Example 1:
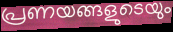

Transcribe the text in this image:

പ്രണയങ്ങളുടെയും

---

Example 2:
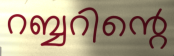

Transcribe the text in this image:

റബ്ബറിന്റെ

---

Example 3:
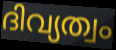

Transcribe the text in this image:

ദിവ്യത്വം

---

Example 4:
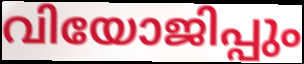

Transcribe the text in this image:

വിയോജിപ്പും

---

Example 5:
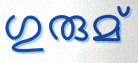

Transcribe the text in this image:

ഗുരുമ്